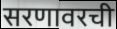
सरणावरची